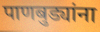
पाणबुड्यांना